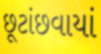
છૂટાંછવાયાં